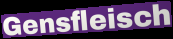
Gensfleisch